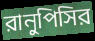
রানুপিসির